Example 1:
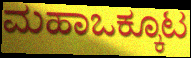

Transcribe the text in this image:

ಮಹಾಒಕ್ಕೂಟ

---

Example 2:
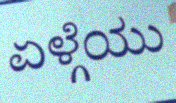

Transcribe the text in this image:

ಏಳ್ಗೆಯು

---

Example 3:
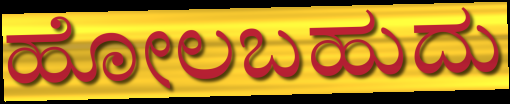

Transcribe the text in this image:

ಹೋಲಬಹುದು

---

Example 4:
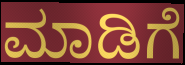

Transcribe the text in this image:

ಮಾಡಿಗೆ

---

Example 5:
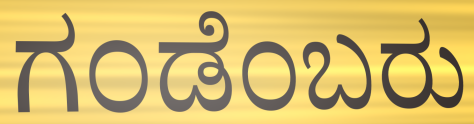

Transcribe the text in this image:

ಗಂಡೆಂಬರು